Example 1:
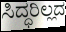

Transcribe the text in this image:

ಸಿದ್ಧರಿಲ್ಲದ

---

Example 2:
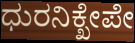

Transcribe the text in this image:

ಧುರನಿಕ್ಖೇಪೇ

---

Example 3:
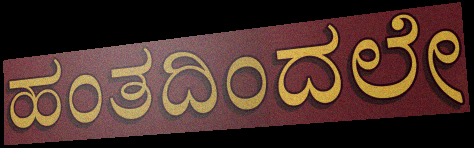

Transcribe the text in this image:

ಹಂತದಿಂದಲೇ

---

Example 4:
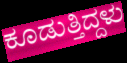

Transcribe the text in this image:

ಕೂಡುತ್ತಿದ್ದಳು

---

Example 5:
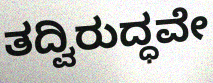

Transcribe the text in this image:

ತದ್ವಿರುದ್ಧವೇ